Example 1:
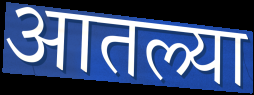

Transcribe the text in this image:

आतल्या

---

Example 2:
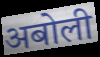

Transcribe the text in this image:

अबोली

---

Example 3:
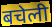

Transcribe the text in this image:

बचेली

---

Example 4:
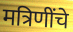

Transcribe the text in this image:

मत्रिणींचे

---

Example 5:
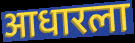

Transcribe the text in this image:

आधारला